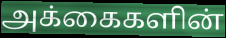
அக்கைகளின்